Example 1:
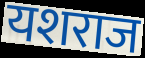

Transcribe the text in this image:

यशराज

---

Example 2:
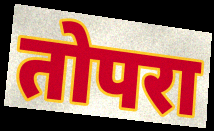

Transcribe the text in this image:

तोपरा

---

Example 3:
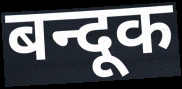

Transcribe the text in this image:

बन्दूक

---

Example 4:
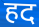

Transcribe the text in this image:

हद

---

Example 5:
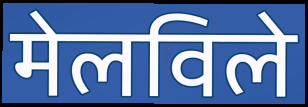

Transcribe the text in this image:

मेलविले